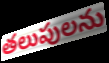
తలుపులను